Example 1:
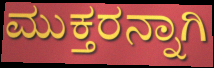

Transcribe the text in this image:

ಮುಕ್ತರನ್ನಾಗಿ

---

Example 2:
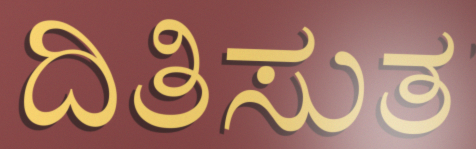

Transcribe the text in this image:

ದಿತಿಸುತ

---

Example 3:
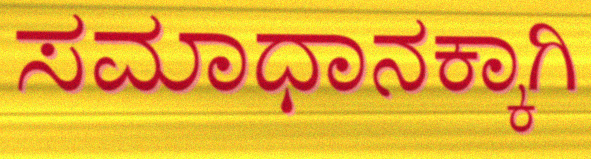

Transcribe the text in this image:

ಸಮಾಧಾನಕ್ಕಾಗಿ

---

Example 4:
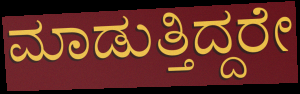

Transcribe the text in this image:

ಮಾಡುತ್ತಿದ್ದರೇ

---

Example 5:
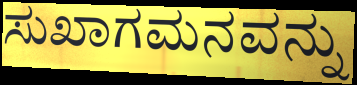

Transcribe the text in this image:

ಸುಖಾಗಮನವನ್ನು